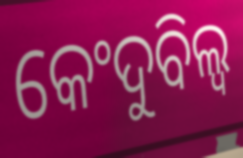
କେଂଦୁବିଲ୍ୱ